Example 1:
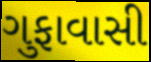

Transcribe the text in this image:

ગુફાવાસી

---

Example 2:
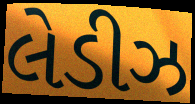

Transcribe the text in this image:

લેડીઝ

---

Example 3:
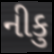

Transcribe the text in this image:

નીકુ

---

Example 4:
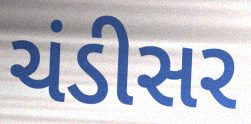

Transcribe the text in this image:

ચંડીસર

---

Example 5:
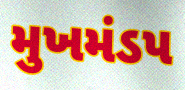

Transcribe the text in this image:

મુખમંડપ